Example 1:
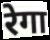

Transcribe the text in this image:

रेगा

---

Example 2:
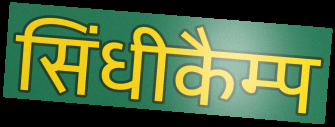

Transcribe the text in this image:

सिंधीकैम्प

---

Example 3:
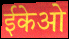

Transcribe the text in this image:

ईकेओ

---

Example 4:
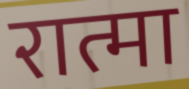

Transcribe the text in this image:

रात्मा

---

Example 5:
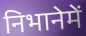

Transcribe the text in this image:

निभानेमें